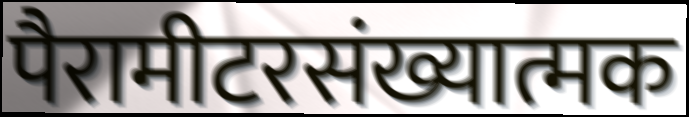
पैरामीटरसंख्यात्मक